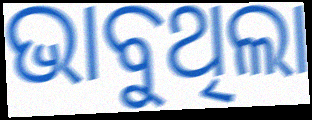
ଭାବୁଥିଲା